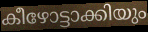
കീഴോട്ടാക്കിയും